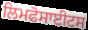
ਲਿਮਫੋਸਾਈਟਸ